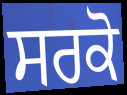
ਸਰਕੋ